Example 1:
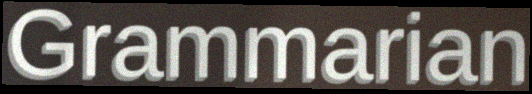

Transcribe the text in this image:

Grammarian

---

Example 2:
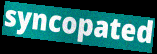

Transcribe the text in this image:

syncopated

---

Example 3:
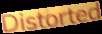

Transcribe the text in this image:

Distorted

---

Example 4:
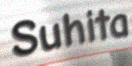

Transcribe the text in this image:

Suhita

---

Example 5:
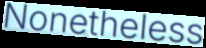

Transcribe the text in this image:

Nonetheless